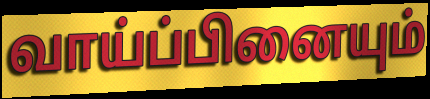
வாய்ப்பினையும்